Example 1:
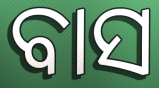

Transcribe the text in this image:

ବାସ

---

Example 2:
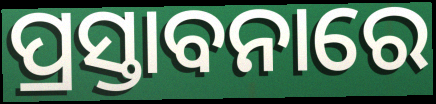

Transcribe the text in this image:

ପ୍ରସ୍ତାବନାରେ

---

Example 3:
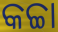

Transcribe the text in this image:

କଚ୍ଚା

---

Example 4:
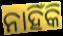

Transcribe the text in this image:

ନାହିଁକି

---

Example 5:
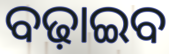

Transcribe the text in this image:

ବଢ଼ାଇବ